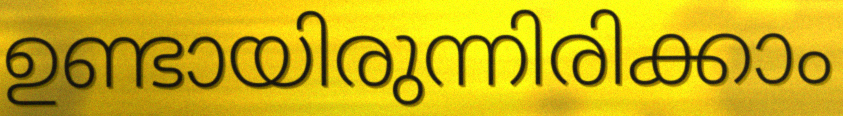
ഉണ്ടായിരുന്നിരിക്കാം